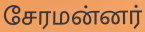
சேரமன்னர்